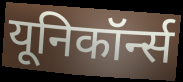
यूनिकॉर्न्स